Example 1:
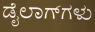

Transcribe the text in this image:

ಡೈಲಾಗ್‌ಗಳು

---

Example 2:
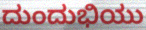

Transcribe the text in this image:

ದುಂದುಭಿಯು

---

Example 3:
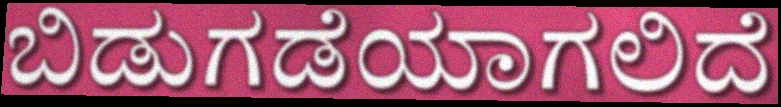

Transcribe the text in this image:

ಬಿಡುಗಡೆಯಾಗಲಿದೆ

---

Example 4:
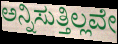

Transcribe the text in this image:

ಅನ್ನಿಸುತ್ತಿಲ್ಲವೇ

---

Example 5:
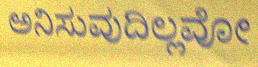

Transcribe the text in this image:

ಅನಿಸುವುದಿಲ್ಲವೋ